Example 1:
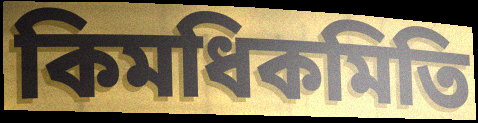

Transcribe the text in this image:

কিমধিকমিতি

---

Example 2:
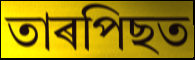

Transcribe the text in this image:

তাৰপিছত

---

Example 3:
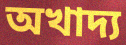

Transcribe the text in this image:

অখাদ্য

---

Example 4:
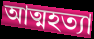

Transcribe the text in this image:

আত্মহত্যা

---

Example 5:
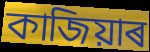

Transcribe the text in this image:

কাজিয়াৰ